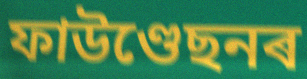
ফাউণ্ডেছনৰ